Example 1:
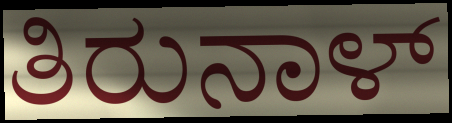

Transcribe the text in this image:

ತಿರುನಾಳ್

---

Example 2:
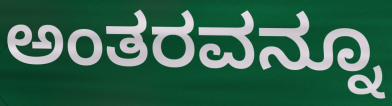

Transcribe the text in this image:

ಅಂತರವನ್ನೂ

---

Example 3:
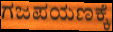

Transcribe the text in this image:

ಗಜಪಯಣಕ್ಕೆ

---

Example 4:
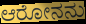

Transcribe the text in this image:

ಆರೋನನು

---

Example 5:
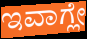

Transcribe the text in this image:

ಇವಾಗ್ಲೇ